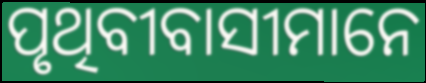
ପୃଥିବୀବାସୀମାନେ